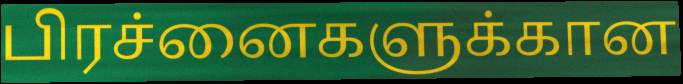
பிரச்னைகளுக்கான